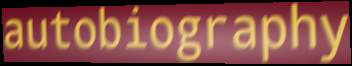
autobiography